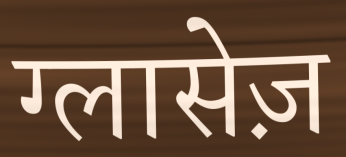
ग्लासेज़